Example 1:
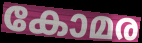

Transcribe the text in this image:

കോമര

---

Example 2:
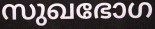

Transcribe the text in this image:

സുഖഭോഗ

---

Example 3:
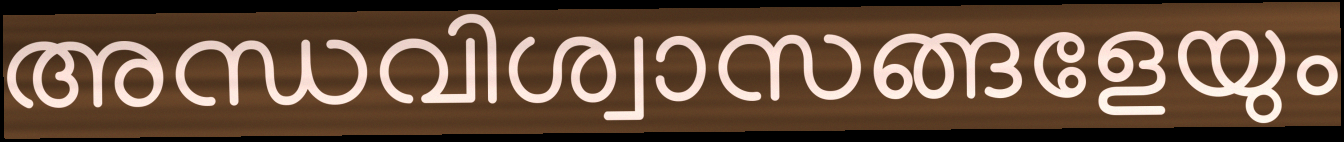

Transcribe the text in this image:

അന്ധവിശ്വാസങ്ങളേയും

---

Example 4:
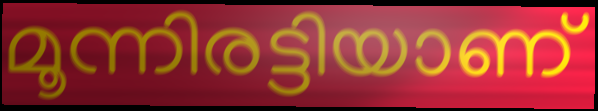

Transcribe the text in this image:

മൂന്നിരട്ടിയാണ്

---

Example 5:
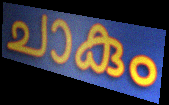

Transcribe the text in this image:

ചാകും